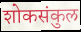
शोकसंकुल